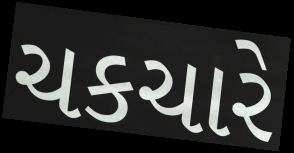
ચકચારે